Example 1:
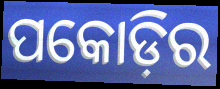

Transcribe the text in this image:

ପକୋଡ଼ିର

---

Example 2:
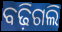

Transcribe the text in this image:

ବଢ଼ିଗଲି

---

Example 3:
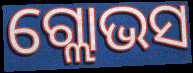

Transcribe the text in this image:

ଗ୍ଲୋଭସ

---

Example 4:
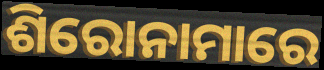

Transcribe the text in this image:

ଶିରୋନାମାରେ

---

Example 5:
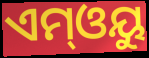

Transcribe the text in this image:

ଏମ୍ଓୟୁ